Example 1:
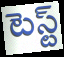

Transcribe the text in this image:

టెస్ట్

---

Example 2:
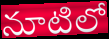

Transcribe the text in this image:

నూటిలో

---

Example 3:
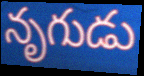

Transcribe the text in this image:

నృగుడు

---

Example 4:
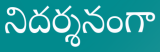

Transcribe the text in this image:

నిదర్శనంగా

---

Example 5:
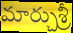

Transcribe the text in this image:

మార్చుశ్రీ